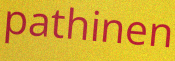
pathinen